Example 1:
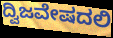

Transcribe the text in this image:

ದ್ವಿಜವೇಷದಲಿ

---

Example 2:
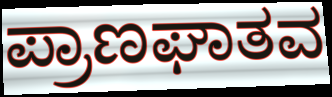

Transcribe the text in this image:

ಪ್ರಾಣಘಾತವ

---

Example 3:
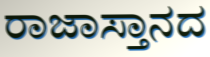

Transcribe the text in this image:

ರಾಜಾಸ್ತಾನದ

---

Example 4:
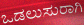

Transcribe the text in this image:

ಒಡಲುಸುರಾಗಿ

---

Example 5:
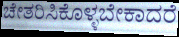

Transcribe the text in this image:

ಚೇತರಿಸಿಕೊಳ್ಳಬೇಕಾದರೆ